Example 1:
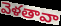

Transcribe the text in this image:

వెళతావా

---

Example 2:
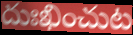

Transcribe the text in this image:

దుఃఖించుట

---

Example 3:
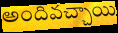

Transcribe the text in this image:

అందివచ్చాయి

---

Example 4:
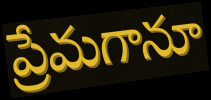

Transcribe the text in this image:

ప్రేమగానూ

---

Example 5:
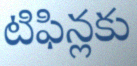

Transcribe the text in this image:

టిఫిన్లకు